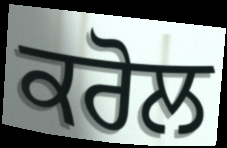
ਕਰੋਲ